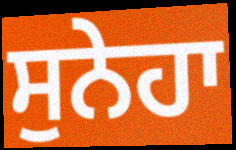
ਸੁਨੇਹਾ